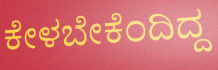
ಕೇಳಬೇಕೆಂದಿದ್ದ